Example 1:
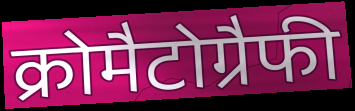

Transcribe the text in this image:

क्रोमैटोग्रैफी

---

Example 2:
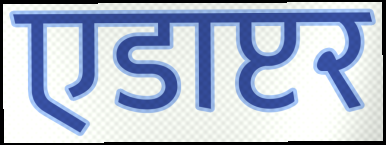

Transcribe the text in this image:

एडाप्टर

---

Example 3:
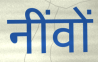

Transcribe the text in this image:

नींवों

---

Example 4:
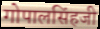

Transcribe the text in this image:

गोपालसिंहजी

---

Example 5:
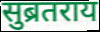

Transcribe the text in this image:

सुब्रतराय